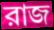
রাজ